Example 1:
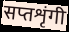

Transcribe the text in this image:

सप्तशृंगी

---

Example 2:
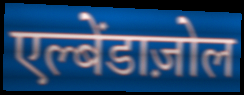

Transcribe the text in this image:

एल्बेंडाज़ोल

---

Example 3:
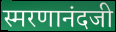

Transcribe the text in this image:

स्मरणानंदजी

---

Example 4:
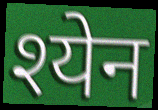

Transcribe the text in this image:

श्येन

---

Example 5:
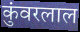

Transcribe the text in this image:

कुंवरलाल